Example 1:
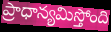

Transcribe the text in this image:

ప్రాధాన్యమిస్తోంది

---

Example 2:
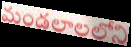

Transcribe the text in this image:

మండలాలలోని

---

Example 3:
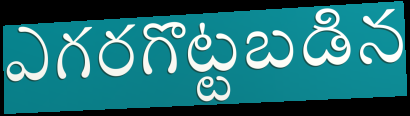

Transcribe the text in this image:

ఎగరగొట్టబడిన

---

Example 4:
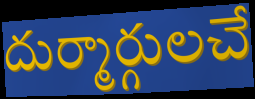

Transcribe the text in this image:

దుర్మార్గులచే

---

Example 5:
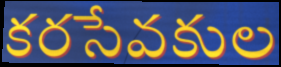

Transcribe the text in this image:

కరసేవకుల